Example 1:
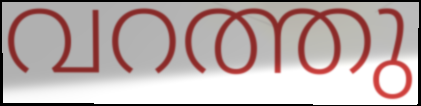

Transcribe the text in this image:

വറത്തു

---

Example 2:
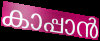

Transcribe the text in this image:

കാപ്പാൻ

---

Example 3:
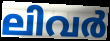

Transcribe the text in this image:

ലിവർ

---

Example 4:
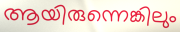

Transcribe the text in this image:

ആയിരുന്നെങ്കിലും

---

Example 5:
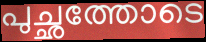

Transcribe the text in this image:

പുച്ഛത്തോടെ